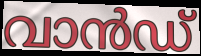
വാൻഡ്